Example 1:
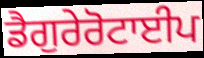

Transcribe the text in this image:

ਡੈਗੁਰੇਰੋਟਾਈਪ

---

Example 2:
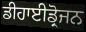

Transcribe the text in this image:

ਡੀਹਾਈਡ੍ਰੋਜਨ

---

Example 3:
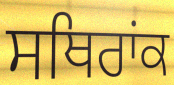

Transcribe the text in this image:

ਸਥਿਰਾਂਕ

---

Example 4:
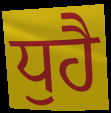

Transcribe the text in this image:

ਧੁਹੈ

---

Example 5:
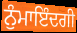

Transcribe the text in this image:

ਨੁੰਮਾਇੰਦਗੀ